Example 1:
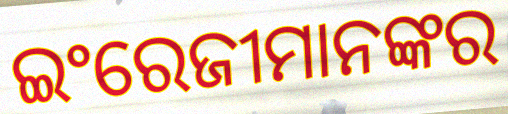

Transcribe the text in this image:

ଇଂରେଜୀମାନଙ୍କର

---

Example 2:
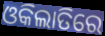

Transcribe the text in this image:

ଓକିଲାତିରେ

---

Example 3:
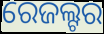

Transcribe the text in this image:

ରେଜଲ୍ଟର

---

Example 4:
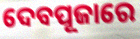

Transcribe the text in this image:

ଦେବପୂଜାରେ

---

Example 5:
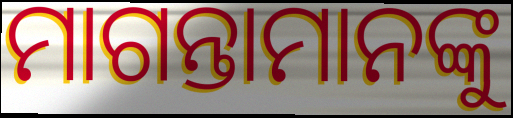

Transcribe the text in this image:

ମାଗନ୍ତାମାନଙ୍କୁ